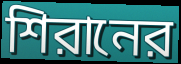
শিরানের